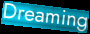
Dreaming